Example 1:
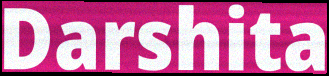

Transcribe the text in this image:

Darshita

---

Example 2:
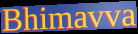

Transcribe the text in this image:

Bhimavva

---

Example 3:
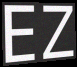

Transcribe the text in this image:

EZ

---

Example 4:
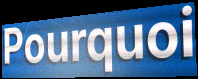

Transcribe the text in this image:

Pourquoi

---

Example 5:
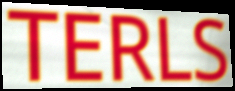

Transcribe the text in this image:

TERLS